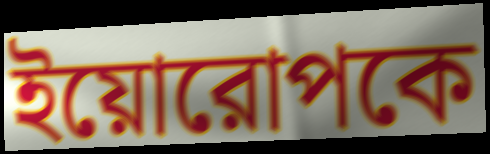
ইয়োরোপকে